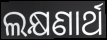
ଲକ୍ଷଣାର୍ଥ